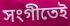
সংগীতেই